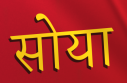
सोया